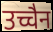
उच्चैन